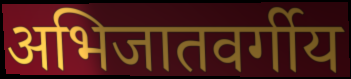
अभिजातवर्गीय